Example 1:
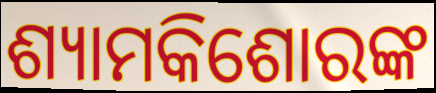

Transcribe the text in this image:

ଶ୍ୟାମକିଶୋରଙ୍କ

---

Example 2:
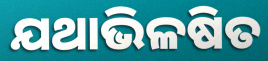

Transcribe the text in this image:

ଯଥାଭିଳଷିତ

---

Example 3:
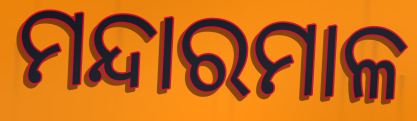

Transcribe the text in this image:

ମନ୍ଦାରମାଳ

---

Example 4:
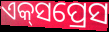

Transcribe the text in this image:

ଏକ୍‍ସପ୍ରେସ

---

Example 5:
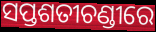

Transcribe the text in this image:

ସପ୍ତଶତୀଚଣ୍ଡୀରେ